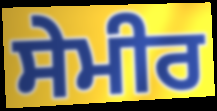
ਸੇਮੀਰ